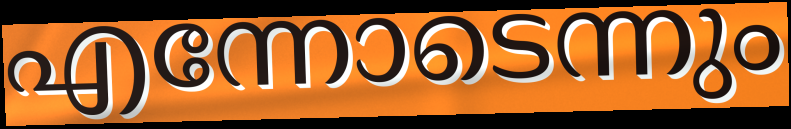
എന്നോടെന്നും